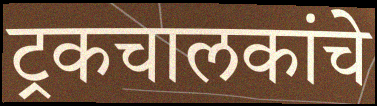
ट्रकचालकांचे